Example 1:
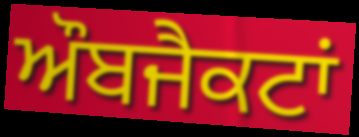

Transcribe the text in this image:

ਔਬਜੈਕਟਾਂ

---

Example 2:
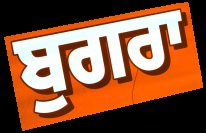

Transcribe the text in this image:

ਬੁਗਰਾ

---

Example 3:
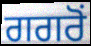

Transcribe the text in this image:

ਗਗਰੋਂ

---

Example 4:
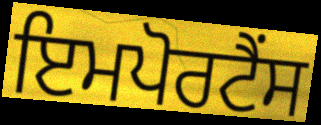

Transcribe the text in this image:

ਇਮਪੋਰਟੈਂਸ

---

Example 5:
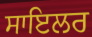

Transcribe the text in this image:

ਸਾਇਲਰ